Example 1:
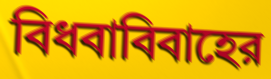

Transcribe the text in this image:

বিধবাবিবাহের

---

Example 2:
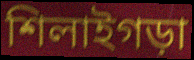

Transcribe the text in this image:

শিলাইগড়া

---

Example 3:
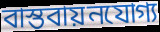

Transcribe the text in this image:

বাস্তবায়নযোগ্য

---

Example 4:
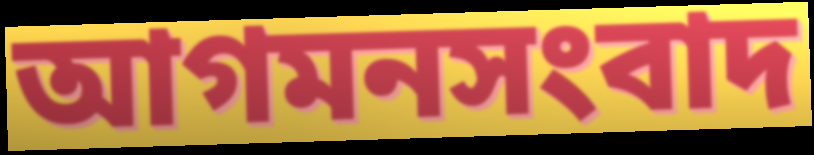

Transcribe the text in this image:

আগমনসংবাদ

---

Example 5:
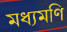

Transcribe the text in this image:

মধ্যমণি